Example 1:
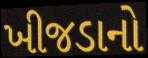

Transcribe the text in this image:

ખીજડાનો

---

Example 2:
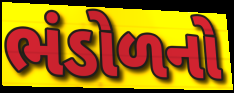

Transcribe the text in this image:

ભંડોળનો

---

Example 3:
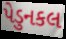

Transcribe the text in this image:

પેડુનકલ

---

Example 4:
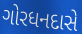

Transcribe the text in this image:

ગોરધનદાસે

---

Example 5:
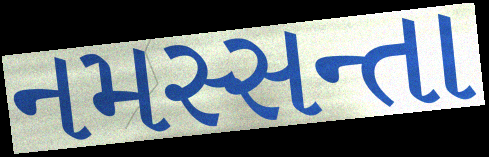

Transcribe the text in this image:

નમસ્સન્તા